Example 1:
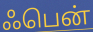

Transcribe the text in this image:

ஃபென்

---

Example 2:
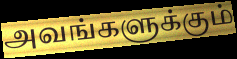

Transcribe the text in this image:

அவங்களுக்கும்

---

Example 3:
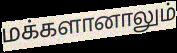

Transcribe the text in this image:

மக்களானாலும்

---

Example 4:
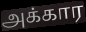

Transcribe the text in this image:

அக்கார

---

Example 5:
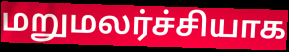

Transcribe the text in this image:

மறுமலர்ச்சியாக